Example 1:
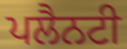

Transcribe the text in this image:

ਪਲੈਨਟੀ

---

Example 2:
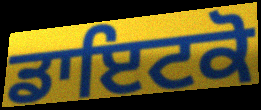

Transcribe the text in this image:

ਡਾਇਟਕੋ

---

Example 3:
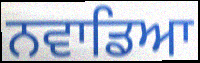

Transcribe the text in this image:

ਨਵਾਡਿਆ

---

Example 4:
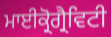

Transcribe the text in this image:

ਮਾਈਕ੍ਰੋਗ੍ਰੈਵਿਟੀ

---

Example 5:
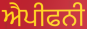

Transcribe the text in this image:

ਐਪੀਫਨੀ